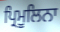
ਪ੍ਰਿਮੂਲਿਨਾ